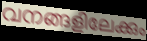
വനങ്ങളിലേക്കും